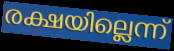
രക്ഷയില്ലെന്ന്